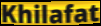
Khilafat